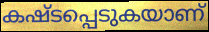
കഷ്ടപ്പെടുകയാണ്